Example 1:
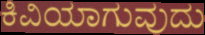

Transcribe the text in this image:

ಕಿವಿಯಾಗುವುದು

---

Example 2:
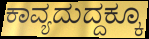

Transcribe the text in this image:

ಕಾವ್ಯದುದ್ದಕ್ಕೂ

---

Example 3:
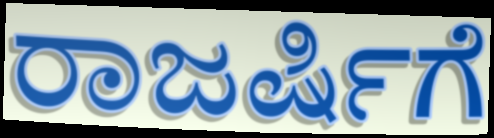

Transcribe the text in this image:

ರಾಜರ್ಷಿಗೆ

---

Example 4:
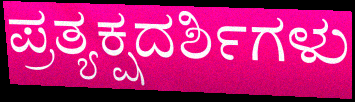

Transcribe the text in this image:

ಪ್ರತ್ಯಕ್ಷದರ್ಶಿಗಳು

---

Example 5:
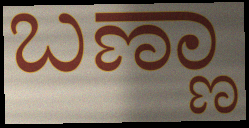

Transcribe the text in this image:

ಬಣ್ಣಾ